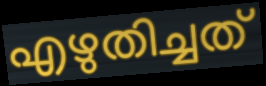
എഴുതിച്ചത്